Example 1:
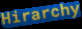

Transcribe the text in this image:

Hirarchy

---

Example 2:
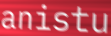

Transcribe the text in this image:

anistu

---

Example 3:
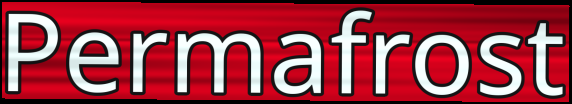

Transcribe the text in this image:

Permafrost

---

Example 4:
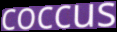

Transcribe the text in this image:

coccus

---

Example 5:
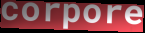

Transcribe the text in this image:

corpore